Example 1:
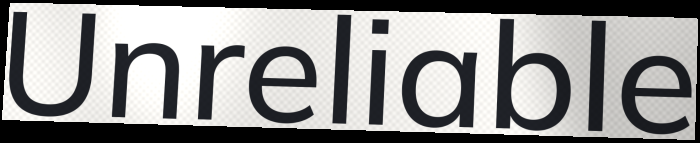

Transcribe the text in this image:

Unreliable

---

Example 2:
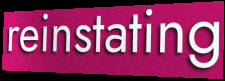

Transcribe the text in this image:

reinstating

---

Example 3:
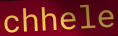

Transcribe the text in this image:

chhele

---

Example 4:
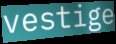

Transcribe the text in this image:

vestige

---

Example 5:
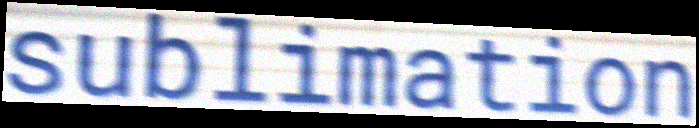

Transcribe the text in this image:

sublimation